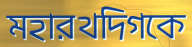
মহারথদিগকে